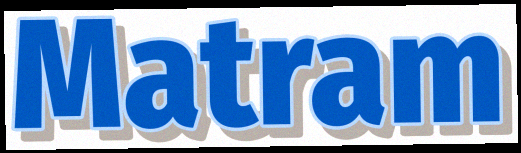
Matram